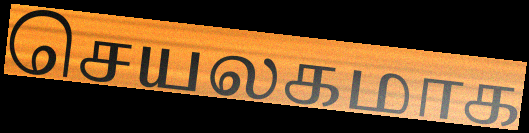
செயலகமாக